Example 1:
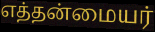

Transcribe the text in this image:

எத்தன்மையர்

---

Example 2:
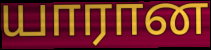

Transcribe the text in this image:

யாரான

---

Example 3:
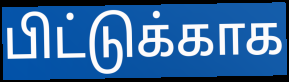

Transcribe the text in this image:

பிட்டுக்காக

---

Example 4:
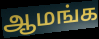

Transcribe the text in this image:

ஆமங்க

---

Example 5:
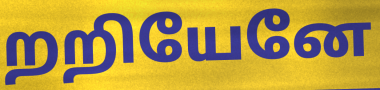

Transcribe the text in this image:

றறியேனே